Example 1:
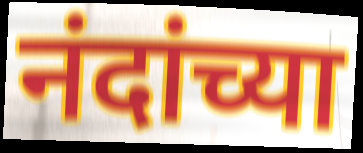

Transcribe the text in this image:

नंदांच्या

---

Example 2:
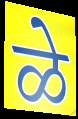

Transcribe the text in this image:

ळे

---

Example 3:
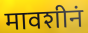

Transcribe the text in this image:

मावशीनं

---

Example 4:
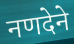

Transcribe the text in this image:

नणदेने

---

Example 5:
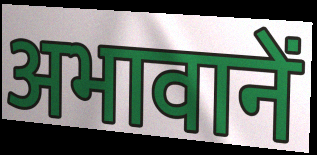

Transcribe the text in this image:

अभावानें